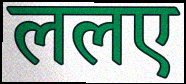
ललए